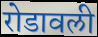
रोडावली